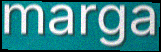
marga